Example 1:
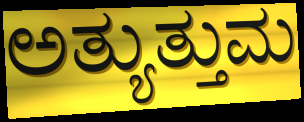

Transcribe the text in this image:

ಅತ್ಯುತ್ತುಮ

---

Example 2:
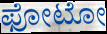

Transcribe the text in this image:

ಫೋಟೋ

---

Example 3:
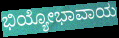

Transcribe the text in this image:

ಭಿಯ್ಯೋಭಾವಾಯ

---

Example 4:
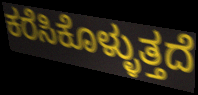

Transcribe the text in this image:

ಕರೆಸಿಕೊಳ್ಳುತ್ತದೆ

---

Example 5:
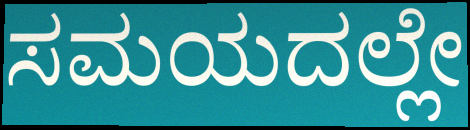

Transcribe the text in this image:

ಸಮಯದಲ್ಲೇ